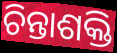
ଚିନ୍ତାଶକ୍ତି